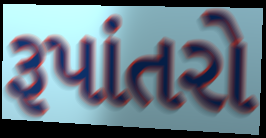
રૂપાંતરો